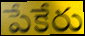
పేకేరు